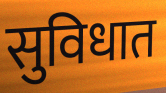
सुविधात